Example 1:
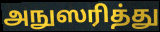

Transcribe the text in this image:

அநுஸரித்து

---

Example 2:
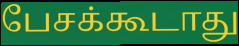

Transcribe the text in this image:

பேசக்கூடாது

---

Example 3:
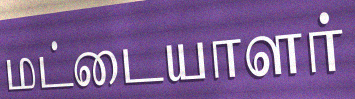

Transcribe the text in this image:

மட்டையாளர்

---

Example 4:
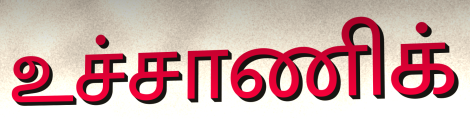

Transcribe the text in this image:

உச்சாணிக்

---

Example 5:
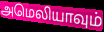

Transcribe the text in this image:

அமெலியாவும்